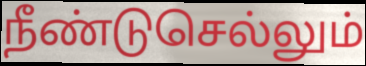
நீண்டுசெல்லும்